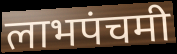
लाभपंचमी